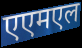
एएमएल